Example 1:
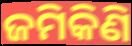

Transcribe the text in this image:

ଜମିକିଣି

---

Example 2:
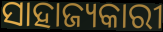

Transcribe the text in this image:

ସାହାଜ୍ଯକାରୀ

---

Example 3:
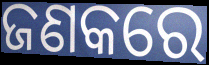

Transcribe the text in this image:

ଜଣକରେ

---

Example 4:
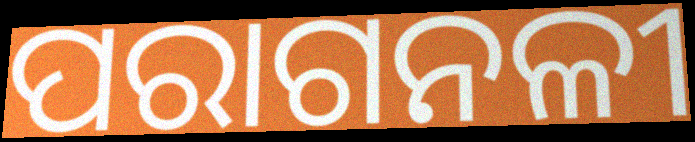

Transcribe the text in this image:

ପରାଗନଳୀ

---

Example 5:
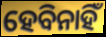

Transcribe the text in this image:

ହେବିନାହିଁ